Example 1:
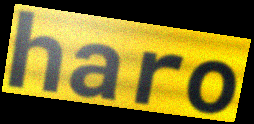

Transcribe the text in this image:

haro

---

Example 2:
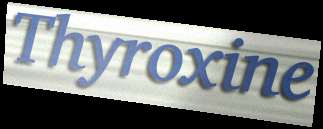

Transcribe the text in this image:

Thyroxine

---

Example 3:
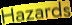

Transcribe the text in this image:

Hazards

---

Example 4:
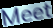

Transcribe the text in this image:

Meet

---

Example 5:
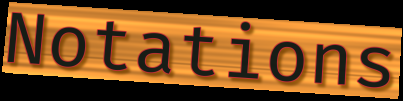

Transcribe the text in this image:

Notations